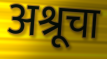
अश्रूचा